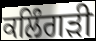
ਕਲਿੰਗੜੀ